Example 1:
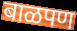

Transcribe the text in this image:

बाळपण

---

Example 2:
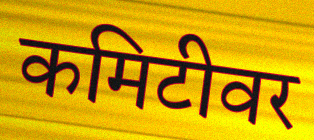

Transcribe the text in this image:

कमिटीवर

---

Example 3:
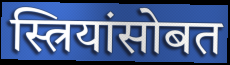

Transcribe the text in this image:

स्त्रियांसोबत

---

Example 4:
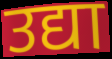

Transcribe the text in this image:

उद्या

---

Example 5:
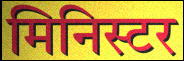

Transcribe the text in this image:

मिनिस्टर